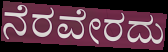
ನೆರವೇರದು